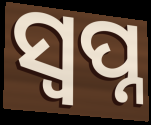
ସ୍ବପ୍ନ